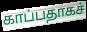
காப்பதாகச்